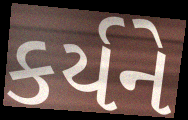
કર્યને